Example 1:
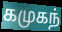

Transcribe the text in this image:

கமுகந்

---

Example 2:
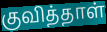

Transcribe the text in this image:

குவித்தாள்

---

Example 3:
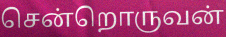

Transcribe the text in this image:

சென்றொருவன்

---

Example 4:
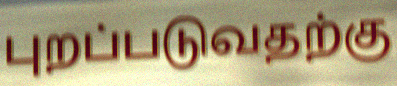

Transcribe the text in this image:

புறப்படுவதற்கு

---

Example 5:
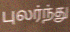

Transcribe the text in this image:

புலர்ந்து